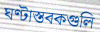
ঘণ্টাস্তবকগুলি